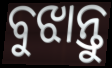
ବୁଝାନ୍ତୁ